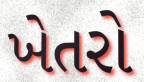
ખેતરો